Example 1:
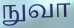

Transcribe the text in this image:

நுவா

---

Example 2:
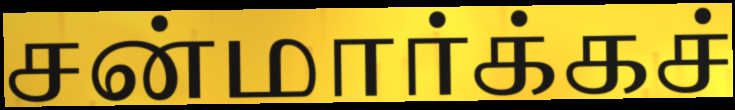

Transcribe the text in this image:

சன்மார்க்கச்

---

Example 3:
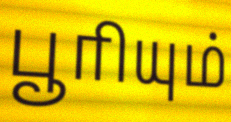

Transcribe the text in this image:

பூரியும்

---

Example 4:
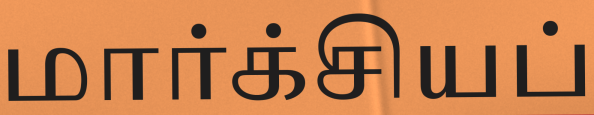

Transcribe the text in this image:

மார்க்சியப்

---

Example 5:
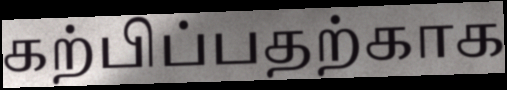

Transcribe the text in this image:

கற்பிப்பதற்காக